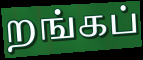
றங்கப்